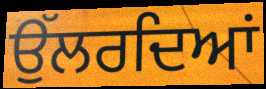
ਉੱਲਰਦਿਆਂ